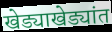
खेड्याखेड्यांत